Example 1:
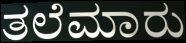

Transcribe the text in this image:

ತಲೆಮಾರು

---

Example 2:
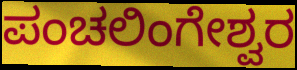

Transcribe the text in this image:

ಪಂಚಲಿಂಗೇಶ್ವರ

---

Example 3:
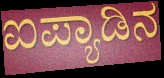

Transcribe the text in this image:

ಐಪ್ಯಾಡಿನ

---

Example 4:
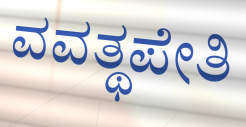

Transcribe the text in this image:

ವವತ್ಥಪೇತಿ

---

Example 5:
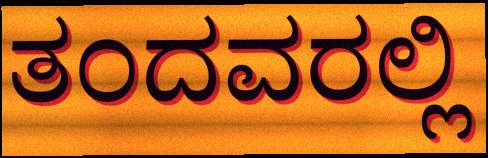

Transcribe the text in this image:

ತಂದವರಲ್ಲಿ